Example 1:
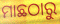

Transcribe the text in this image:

ମାଛଠାରୁ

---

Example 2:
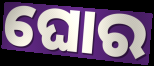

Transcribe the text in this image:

ଘୋର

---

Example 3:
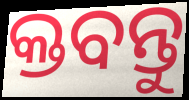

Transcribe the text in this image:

କ୍ତବନ୍ତୁ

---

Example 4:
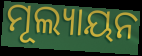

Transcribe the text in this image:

ମୂଲ୍ୟାୟନ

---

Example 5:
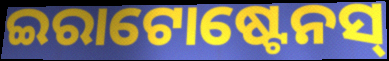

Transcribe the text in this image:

ଇରାଟୋଷ୍ଟେନସ୍